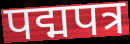
पद्मपत्र